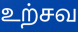
உற்சவ